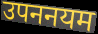
उपननयम